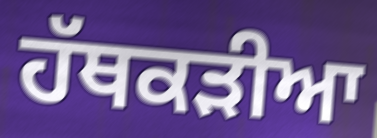
ਹੱਥਕੜੀਆ